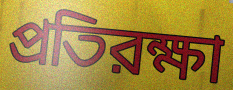
প্রতিরক্ষা